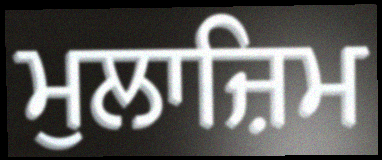
ਮੁਲਾਜ਼ਿਮ